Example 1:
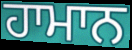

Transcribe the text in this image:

ਹਾਮਾਨ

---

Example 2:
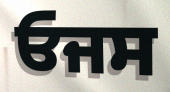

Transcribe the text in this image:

ਓਜਸ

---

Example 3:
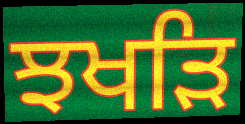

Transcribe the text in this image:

ਝਖੜਿ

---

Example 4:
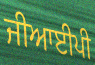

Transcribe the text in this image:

ਜੀਆਈਪੀ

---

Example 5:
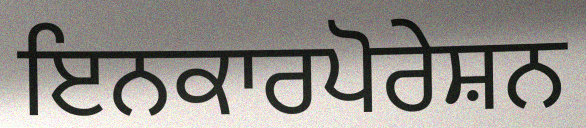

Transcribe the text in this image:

ਇਨਕਾਰਪੋਰੇਸ਼ਨ